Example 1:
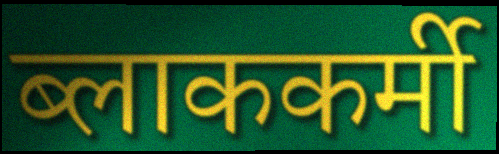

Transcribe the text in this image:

ब्लाककर्मी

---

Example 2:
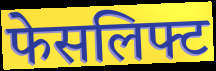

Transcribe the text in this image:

फेसलिफ्ट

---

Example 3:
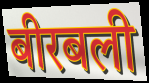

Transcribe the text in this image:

बीरबली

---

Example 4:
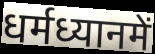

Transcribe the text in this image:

धर्मध्यानमें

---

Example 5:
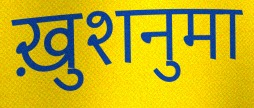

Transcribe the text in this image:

ख़ुशनुमा